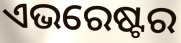
ଏଭରେଷ୍ଟର